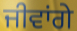
ਜੀਵਾਂਗੇ